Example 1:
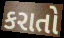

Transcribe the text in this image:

કરાતો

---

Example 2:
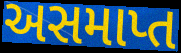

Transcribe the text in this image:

અસમાપ્ત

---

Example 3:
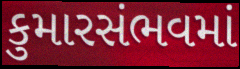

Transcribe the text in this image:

કુમારસંભવમાં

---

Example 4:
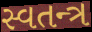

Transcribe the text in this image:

સ્વતન્ત્ર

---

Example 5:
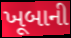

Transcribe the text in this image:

ખૂબાની